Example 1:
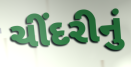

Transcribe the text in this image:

ચીંદરીનું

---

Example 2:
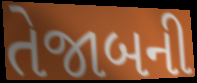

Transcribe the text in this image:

તેજાબની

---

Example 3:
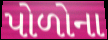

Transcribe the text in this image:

પોળોના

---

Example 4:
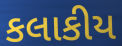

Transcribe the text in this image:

કલાકીય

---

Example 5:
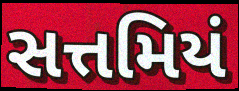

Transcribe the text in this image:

સત્તમિયં